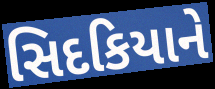
સિદકિયાને